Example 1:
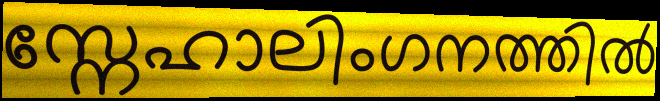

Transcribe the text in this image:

സ്നേഹാലിംഗനത്തിൽ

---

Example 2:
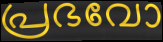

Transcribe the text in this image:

പ്രഭവോ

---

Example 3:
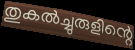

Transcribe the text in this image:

തുകൽച്ചുരുളിന്റെ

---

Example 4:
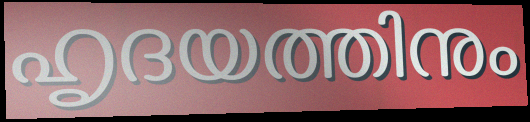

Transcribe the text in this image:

ഹൃദയത്തിനും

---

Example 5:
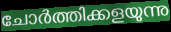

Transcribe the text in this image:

ചോർത്തിക്കളയുന്നു